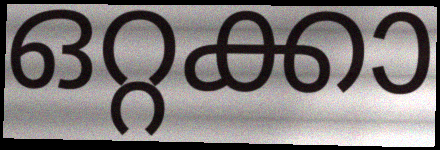
ഒറ്റക്കാ